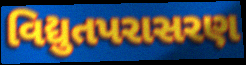
વિદ્યુતપરાસરણ